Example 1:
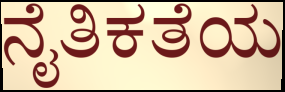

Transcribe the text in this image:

ನೈತಿಕತೆಯ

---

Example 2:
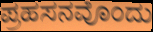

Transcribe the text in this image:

ಪ್ರಹಸನವೊಂದು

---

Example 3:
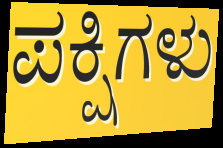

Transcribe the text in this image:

ಪಕ್ಷಿಗಳು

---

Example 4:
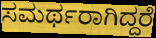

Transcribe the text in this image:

ಸಮರ್ಥರಾಗಿದ್ದರೆ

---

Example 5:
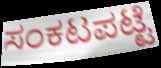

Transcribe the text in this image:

ಸಂಕಟಪಟ್ಟೆ